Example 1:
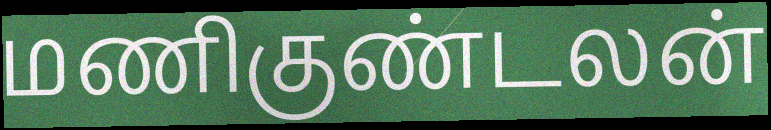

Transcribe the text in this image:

மணிகுண்டலன்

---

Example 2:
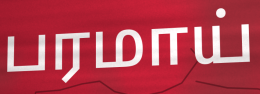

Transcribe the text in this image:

பரமாய்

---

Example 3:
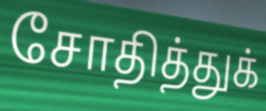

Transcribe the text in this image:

சோதித்துக்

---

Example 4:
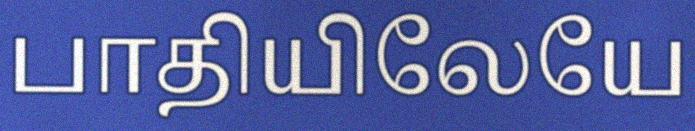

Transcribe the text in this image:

பாதியிலேயே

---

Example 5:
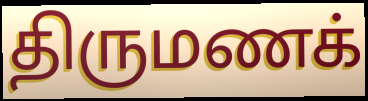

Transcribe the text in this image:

திருமணக்